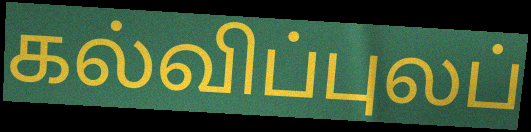
கல்விப்புலப்